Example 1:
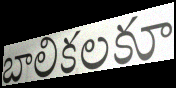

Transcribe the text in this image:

బాలికలకూ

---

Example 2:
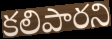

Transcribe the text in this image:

కలిపారని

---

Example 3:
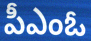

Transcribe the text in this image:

పీఎంఓ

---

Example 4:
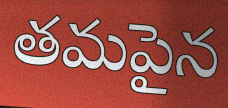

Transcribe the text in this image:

తమపైన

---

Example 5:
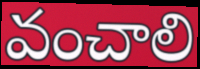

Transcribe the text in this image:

వంచాలి